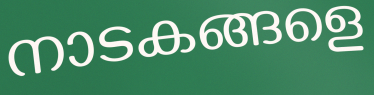
നാടകങ്ങളെ